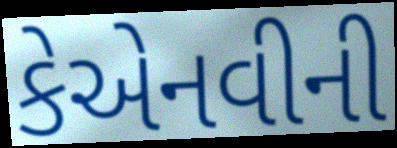
કેએનવીની